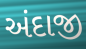
અંદાજી